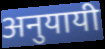
अनुयायी